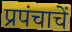
प्रपंचाचें